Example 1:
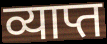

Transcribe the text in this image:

व्याप्त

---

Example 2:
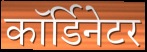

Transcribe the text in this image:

कॉर्डिनेटर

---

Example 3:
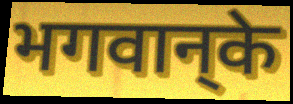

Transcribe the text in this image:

भगवान्‌के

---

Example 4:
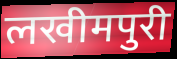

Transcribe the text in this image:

लखीमपुरी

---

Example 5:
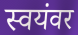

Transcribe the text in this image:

स्वयंवर